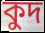
কুদ